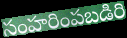
సంహరింపబడిరి